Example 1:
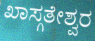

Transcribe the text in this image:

ಖಾಸ್ಗತೇಶ್ವರ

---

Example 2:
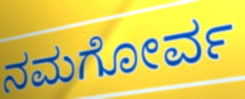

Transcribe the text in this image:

ನಮಗೋರ್ವ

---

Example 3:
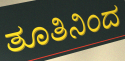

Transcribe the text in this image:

ತೂತಿನಿಂದ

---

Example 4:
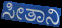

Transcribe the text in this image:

ಸೀತಾನಿ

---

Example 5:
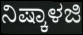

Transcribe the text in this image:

ನಿಷ್ಕಾಳಜಿ